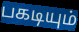
பகடியும்